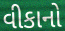
વીકાનો